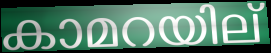
കാമറയില്